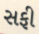
સફી